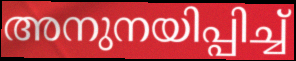
അനുനയിപ്പിച്ച്